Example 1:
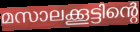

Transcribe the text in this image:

മസാലക്കൂട്ടിന്റെ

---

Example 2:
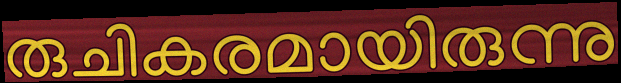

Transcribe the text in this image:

രുചികരമായിരുന്നു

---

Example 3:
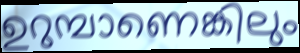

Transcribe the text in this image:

ഉറുമ്പാണെങ്കിലും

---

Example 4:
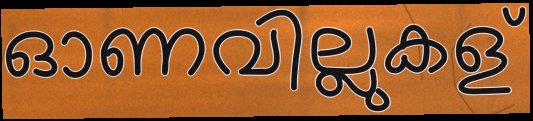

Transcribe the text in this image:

ഓണവില്ലുകള്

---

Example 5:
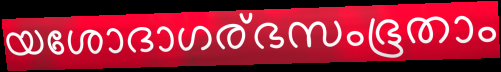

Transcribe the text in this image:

യശോദാഗര്ഭസംഭൂതാം